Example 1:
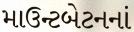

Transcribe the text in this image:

માઉન્ટબેટનનાં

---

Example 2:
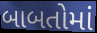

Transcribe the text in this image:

બાબતોમાં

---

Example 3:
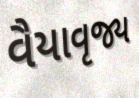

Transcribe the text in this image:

વૈયાવૃજ્ય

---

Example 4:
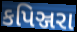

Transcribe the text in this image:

કપિઞ્જરા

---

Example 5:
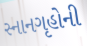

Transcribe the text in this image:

સ્નાનગૃહોની